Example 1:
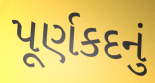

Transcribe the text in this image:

પૂર્ણકદનું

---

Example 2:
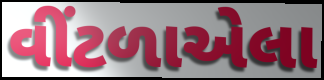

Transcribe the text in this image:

વીંટળાએલા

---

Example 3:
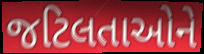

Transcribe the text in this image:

જટિલતાઓને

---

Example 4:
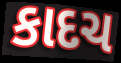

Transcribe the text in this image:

કાદચ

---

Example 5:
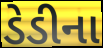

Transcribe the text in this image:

ડેડીના